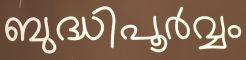
ബുദ്ധിപൂർവ്വം